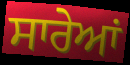
ਸਾਰੇਆਂ